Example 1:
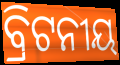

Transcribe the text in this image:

ବ୍ରିଟନୀୟ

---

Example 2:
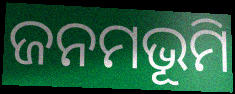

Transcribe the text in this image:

ଜନମଭୂମି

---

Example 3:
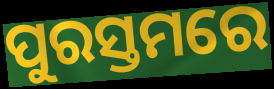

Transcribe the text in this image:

ପୁରସ୍ତମରେ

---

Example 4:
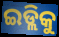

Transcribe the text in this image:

ଇଡ୍ଲିକୁ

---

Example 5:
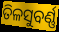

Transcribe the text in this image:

ତିଳସୁବର୍ଣ୍ଣ